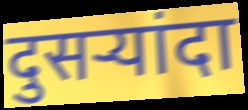
दुसर्‍यांदा